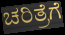
ಚರಿತ್ರೆಗೆ